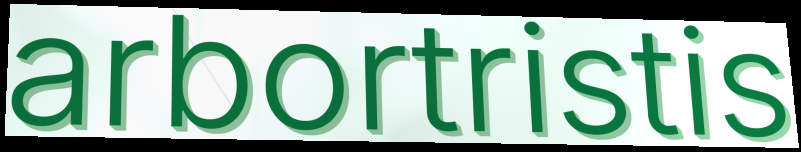
arbortristis